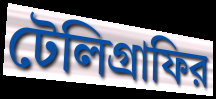
টেলিগ্রাফির